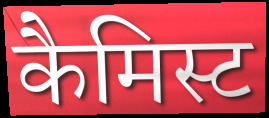
कैमिस्ट